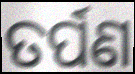
ତର୍ପଣ